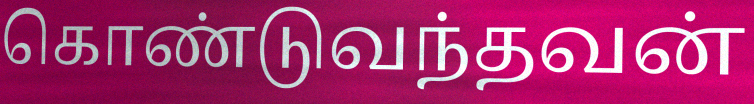
கொண்டுவந்தவன்